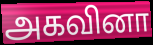
அகவினா